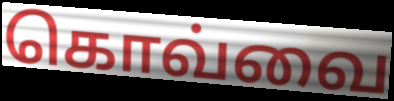
கொவ்வை